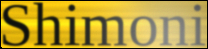
Shimoni